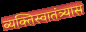
व्यक्तिस्वातंत्र्यास